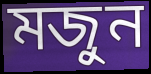
মজুন